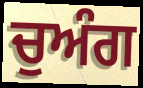
ਚੁਅੰਗ